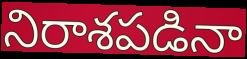
నిరాశపడినా